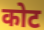
कोट